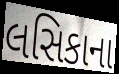
લસિકાના